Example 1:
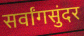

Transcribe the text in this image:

सर्वांगसुंदर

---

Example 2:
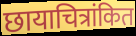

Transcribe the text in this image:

छायाचित्रांकित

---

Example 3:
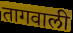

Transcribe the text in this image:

तागवाली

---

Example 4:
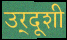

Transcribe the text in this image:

उर्दूशी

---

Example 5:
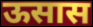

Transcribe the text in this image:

ऊसास